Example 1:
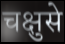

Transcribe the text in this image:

चक्षुसे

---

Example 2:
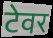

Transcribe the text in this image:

टेवर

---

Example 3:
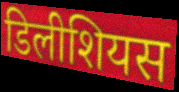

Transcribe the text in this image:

डिलीशियस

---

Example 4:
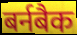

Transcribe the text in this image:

बर्नबैक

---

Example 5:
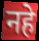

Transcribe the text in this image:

नहे